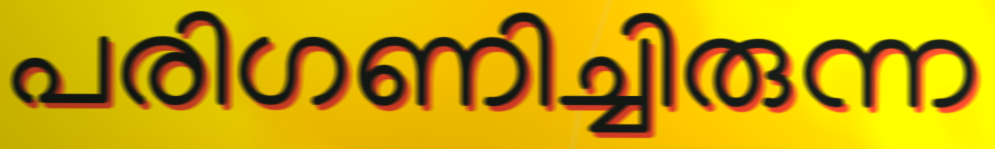
പരിഗണിച്ചിരുന്ന